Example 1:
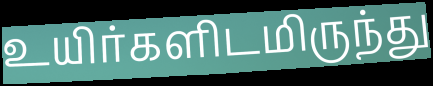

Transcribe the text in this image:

உயிர்களிடமிருந்து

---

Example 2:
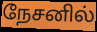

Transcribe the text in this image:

நேசனில்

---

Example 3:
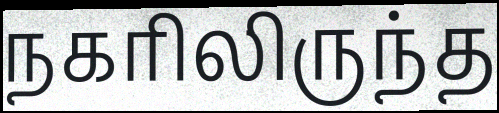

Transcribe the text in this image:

நகரிலிருந்த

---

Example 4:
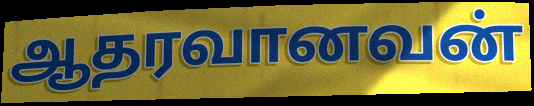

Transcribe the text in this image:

ஆதரவானவன்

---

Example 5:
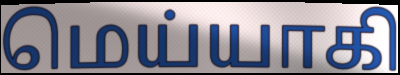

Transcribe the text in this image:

மெய்யாகி